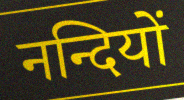
नन्दियों